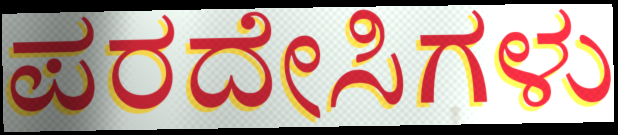
ಪರದೇಸಿಗಳು